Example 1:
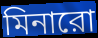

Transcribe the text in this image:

মিনারো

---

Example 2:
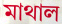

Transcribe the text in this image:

মাথাল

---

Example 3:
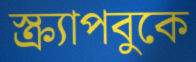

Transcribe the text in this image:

স্ক্র্যাপবুকে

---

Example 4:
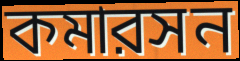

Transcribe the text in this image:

কমারসন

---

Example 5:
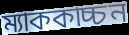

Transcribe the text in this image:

ম্যাককাচ্চন